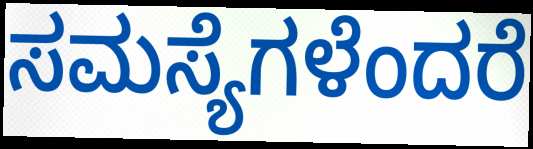
ಸಮಸ್ಯೆಗಳೆಂದರೆ